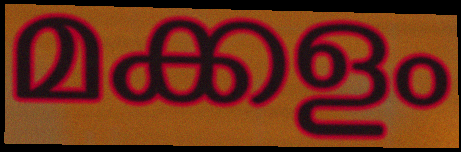
മക്കളം